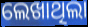
ଲେଖାଥିଲା